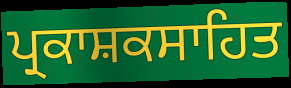
ਪ੍ਰਕਾਸ਼ਕਸਾਹਿਤ